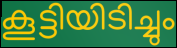
കൂട്ടിയിടിച്ചും